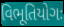
વિભૂતિયોગઃ